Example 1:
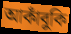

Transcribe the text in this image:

আকাঁবুকি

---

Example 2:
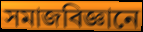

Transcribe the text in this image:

সমাজবিজ্ঞানে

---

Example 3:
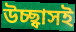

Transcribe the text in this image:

উচ্ছ্বাসই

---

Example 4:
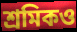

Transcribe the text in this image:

শ্রমিকও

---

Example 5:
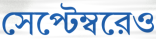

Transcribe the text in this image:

সেপ্টেম্বরেও